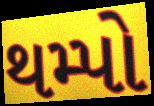
થમ્પો